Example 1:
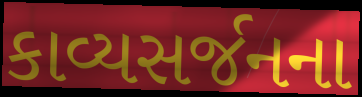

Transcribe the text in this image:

કાવ્યસર્જનના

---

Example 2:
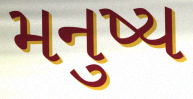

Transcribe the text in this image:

મનુષ્ય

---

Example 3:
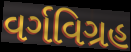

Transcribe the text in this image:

વર્ગવિગ્રહ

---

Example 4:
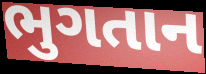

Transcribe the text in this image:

ભુગતાન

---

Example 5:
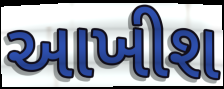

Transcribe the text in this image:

આખીશ